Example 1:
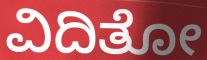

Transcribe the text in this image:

ವಿದಿತೋ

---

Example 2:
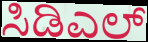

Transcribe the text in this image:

ಸಿಡಿಎಲ್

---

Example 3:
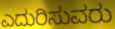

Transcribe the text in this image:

ಎದುರಿಸುವರು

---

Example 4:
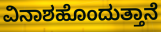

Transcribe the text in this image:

ವಿನಾಶಹೊಂದುತ್ತಾನೆ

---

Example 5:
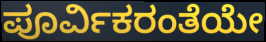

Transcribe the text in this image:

ಪೂರ್ವಿಕರಂತೆಯೇ